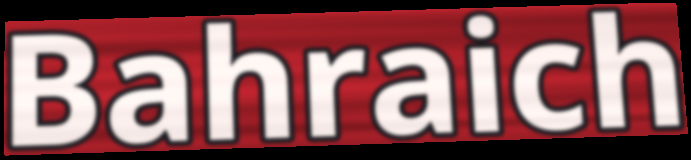
Bahraich